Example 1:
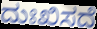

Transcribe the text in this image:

ದುಃಖಿಸದೆ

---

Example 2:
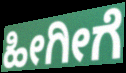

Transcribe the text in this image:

ಹೀಗೀಗೆ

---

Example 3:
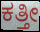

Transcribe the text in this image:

ಕತ್ತೀ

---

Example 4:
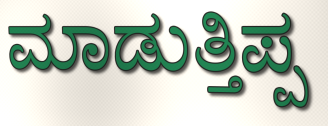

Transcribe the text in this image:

ಮಾಡುತ್ತಿಪ್ಪ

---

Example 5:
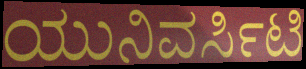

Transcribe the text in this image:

ಯುನಿವರ್ಸಿಟಿ